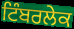
ਟਿੰਬਰਲੇਕ